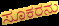
ಸೂಕರನು